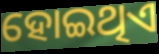
ହୋଇଥିଏ